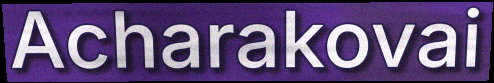
Acharakovai